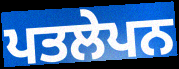
ਪਤਲੇਪਨ